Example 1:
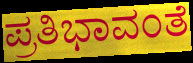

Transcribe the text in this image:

ಪ್ರತಿಭಾವಂತೆ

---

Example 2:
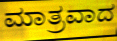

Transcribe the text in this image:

ಮಾತ್ರವಾದ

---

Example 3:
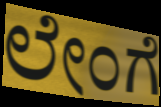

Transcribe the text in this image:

ಲೇಂಗೆ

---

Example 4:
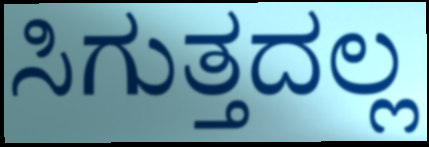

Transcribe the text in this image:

ಸಿಗುತ್ತದಲ್ಲ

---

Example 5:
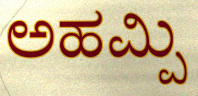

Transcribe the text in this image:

ಅಹಮ್ಪಿ